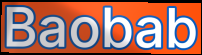
Baobab